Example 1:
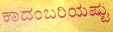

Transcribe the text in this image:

ಕಾದಂಬರಿಯಷ್ಟು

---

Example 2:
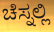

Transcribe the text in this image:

ಚೆಸ್ನಲ್ಲಿ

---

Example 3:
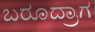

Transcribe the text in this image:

ಬರೂದ್ರಾಗ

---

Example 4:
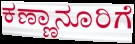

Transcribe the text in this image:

ಕಣ್ಣಾನೂರಿಗೆ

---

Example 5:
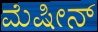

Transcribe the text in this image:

ಮೆಷೀನ್